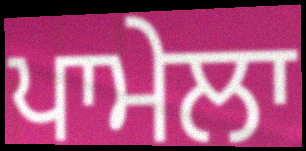
ਪਾਮੇਲਾ